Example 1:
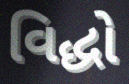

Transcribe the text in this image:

વિદ્ધો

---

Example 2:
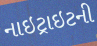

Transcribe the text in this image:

નાઇટ્રાઇટની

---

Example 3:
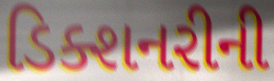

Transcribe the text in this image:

ડિક્શનરીની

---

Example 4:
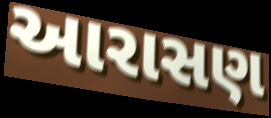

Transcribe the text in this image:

આરાસણ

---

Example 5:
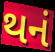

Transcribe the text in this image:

થનં